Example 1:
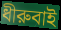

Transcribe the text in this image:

ধীরুবাই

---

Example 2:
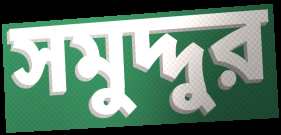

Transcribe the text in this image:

সমুদ্দুর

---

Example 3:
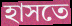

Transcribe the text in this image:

হাসতে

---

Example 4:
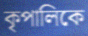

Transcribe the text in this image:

কৃপালিকে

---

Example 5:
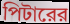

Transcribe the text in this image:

পিটারের